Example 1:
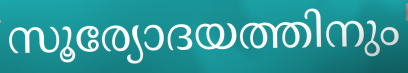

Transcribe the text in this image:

സൂര്യോദയത്തിനും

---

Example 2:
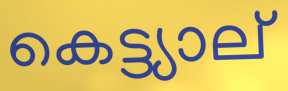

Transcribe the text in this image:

കെട്ട്യാല്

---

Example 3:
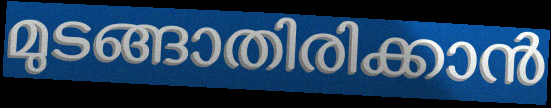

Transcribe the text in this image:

മുടങ്ങാതിരിക്കാൻ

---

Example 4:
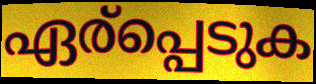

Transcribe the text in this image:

ഏര്പ്പെടുക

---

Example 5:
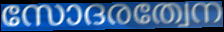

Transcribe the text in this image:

സോദരത്വേന